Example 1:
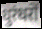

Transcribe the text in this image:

धुरंधरों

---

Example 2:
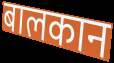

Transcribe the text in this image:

बालकान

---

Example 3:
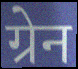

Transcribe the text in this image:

ग्रेन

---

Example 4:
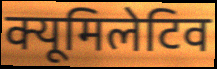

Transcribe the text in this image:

क्यूमिलेटिव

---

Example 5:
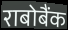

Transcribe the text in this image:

राबोबैंक